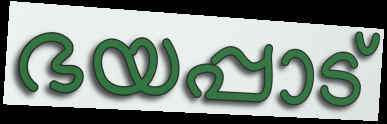
ഭയപ്പാട്